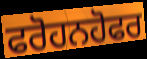
ਫਰੋਹਨਹੋਫਰ